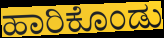
ಹಾರಿಕೊಂಡು